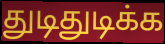
துடிதுடிக்க